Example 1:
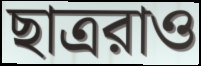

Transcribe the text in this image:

ছাত্ররাও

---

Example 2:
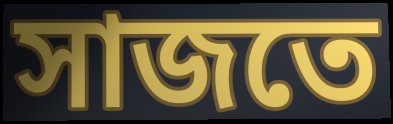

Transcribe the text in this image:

সাজতে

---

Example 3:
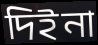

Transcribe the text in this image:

দিইনা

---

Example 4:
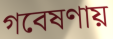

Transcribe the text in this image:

গবেষণায়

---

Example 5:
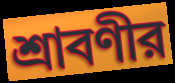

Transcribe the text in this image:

শ্রাবণীর